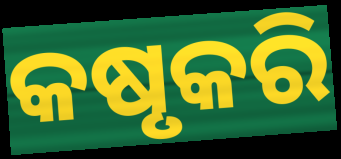
କଷୃକରି